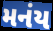
મનંય